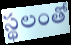
స్థలంతో